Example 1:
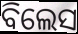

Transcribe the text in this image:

ବିଲେସ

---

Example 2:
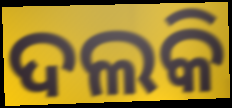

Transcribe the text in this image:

ଦଲକି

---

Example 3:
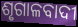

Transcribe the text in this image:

ଶୃଗାଳବାଦୀ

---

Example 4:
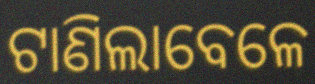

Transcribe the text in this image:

ଟାଣିଲାବେଳେ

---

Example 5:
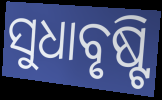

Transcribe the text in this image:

ସୁଧାବୃଷ୍ଟି